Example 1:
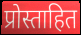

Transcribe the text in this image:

प्रोस्ताहित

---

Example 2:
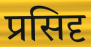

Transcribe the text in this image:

प्रसिदृ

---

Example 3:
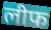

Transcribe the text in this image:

लीफ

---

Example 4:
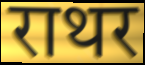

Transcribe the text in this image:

राथर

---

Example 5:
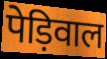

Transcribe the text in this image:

पेड़िवाल